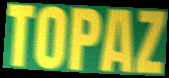
TOPAZ